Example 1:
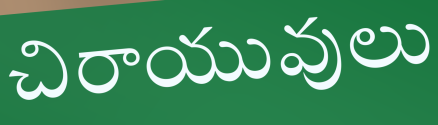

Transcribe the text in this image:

చిరాయువులు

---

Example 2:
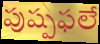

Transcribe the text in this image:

పుష్పఫలే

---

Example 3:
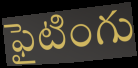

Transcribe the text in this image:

ఫైటింగు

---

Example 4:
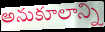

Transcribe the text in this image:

అనుకూలాన్ని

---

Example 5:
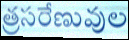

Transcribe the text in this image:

త్రసరేణువుల